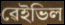
ৱেইভিল